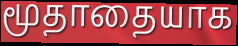
மூதாதையாக